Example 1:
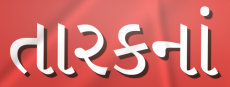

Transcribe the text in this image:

તારકનાં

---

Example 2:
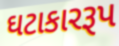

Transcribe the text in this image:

ઘટાકારરૂપ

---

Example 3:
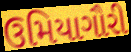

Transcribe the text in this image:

ઉમિયાગૌરી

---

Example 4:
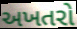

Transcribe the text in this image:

અખતરો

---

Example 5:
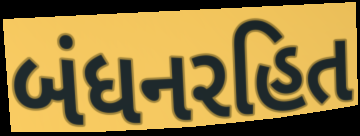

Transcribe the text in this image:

બંધનરહિત